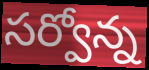
సర్వోన్న